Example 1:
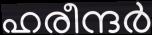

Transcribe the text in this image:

ഹരീന്ദർ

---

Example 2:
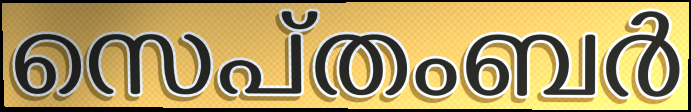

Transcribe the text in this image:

സെപ്‌തംബർ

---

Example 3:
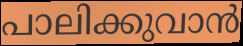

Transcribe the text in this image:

പാലിക്കുവാൻ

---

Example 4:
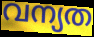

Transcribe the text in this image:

വന്യത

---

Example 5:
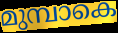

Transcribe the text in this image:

മുമ്പാകെ